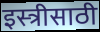
इस्त्रीसाठी